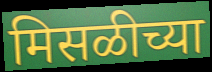
मिसळीच्या